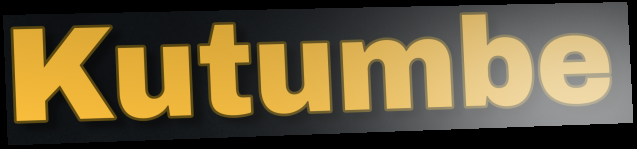
Kutumbe